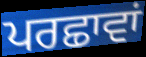
ਪਰਛਾਵਾਂ